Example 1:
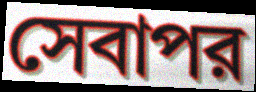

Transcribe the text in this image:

সেবাপর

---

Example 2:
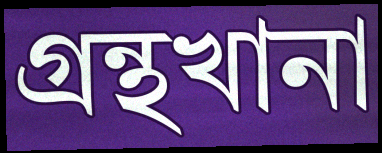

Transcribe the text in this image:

গ্রন্থখানা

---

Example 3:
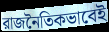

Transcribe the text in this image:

রাজনৈতিকভাবেই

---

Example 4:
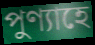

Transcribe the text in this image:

পুণ্যাহে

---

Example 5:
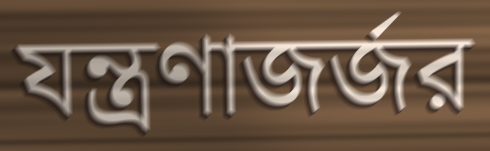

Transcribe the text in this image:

যন্ত্রণাজর্জর